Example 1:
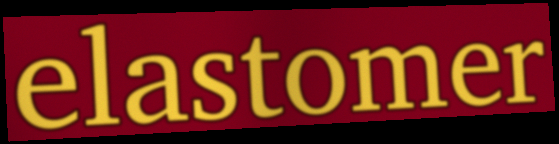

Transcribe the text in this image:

elastomer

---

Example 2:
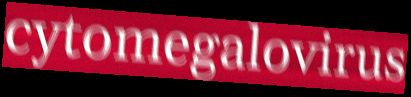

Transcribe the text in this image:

cytomegalovirus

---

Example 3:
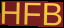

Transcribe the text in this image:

HFB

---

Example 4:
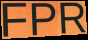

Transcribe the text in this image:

FPR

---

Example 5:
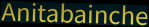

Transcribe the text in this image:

Anitabainche